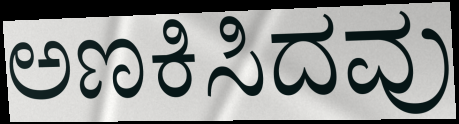
ಅಣಕಿಸಿದವು